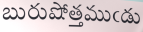
బురుషోత్తముఁడు